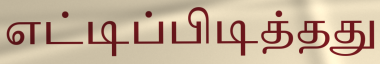
எட்டிப்பிடித்தது